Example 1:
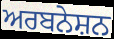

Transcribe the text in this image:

ਅਰਬਨੇਸ਼ਨ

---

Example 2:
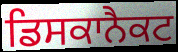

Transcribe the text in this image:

ਡਿਸਕਾਨੈਕਟ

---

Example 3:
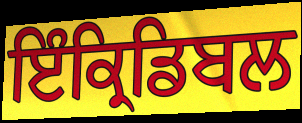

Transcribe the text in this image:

ਇੰਕ੍ਰਿਡਿਬਲ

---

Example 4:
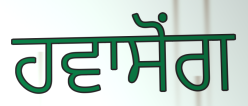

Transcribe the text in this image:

ਹਵਾਸੋਂਗ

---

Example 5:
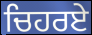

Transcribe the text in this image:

ਚਿਹਰਏ